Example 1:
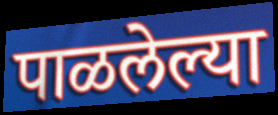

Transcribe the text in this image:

पाळलेल्या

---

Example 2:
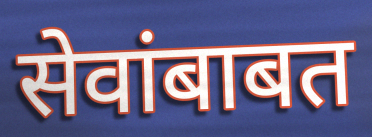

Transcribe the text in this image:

सेवांबाबत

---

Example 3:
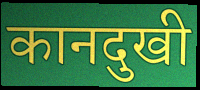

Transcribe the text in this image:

कानदुखी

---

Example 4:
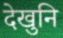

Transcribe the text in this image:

देखुनि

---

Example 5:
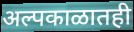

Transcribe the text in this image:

अल्पकाळातही